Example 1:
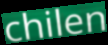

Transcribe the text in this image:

chilen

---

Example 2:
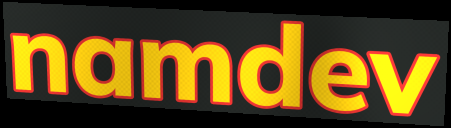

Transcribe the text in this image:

namdev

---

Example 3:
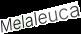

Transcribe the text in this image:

Melaleuca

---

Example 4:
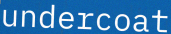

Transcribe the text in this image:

undercoat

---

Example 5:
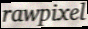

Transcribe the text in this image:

rawpixel